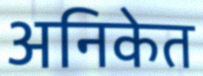
अनिकेत